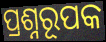
ପ୍ରଶ୍ନରୂପକ